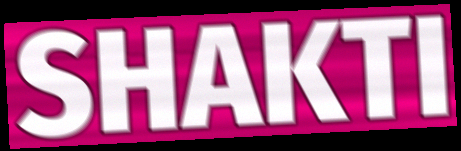
SHAKTI